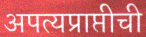
अपत्यप्राप्तीची